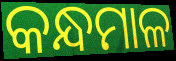
କନ୍ଧମାଳ